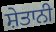
ਸ਼ੇਤਾਨੀ